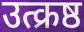
उत्क्रष्ठ